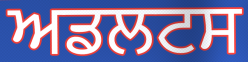
ਅਡਲਟਸ